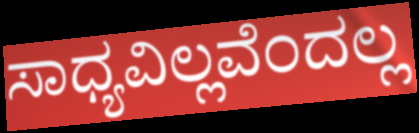
ಸಾಧ್ಯವಿಲ್ಲವೆಂದಲ್ಲ